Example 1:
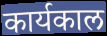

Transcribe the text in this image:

कार्यकाल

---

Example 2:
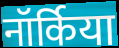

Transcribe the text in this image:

नॉर्किया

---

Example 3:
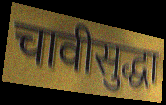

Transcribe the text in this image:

चावीसुद्धा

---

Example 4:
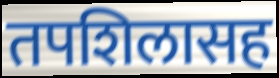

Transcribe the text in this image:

तपशिलासह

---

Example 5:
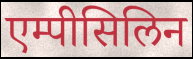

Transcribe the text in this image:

एम्पीसिलिन